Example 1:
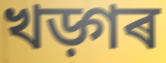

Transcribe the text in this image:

খড়্গৰ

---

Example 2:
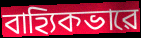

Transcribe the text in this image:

বাহ্যিকভাৱে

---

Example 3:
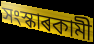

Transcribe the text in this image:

সংস্কাৰকামী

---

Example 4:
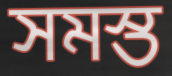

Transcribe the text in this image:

সমস্ত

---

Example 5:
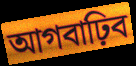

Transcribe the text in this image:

আগবাঢ়িব